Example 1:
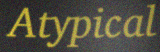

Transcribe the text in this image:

Atypical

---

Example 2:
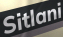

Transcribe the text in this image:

Sitlani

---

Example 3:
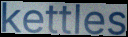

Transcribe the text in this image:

kettles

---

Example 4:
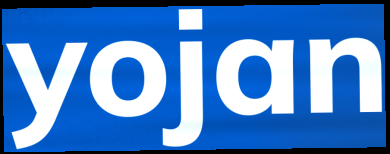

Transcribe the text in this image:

yojan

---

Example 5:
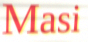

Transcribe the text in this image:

Masi